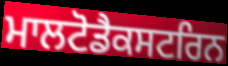
ਮਾਲਟੋਡੈਕਸਟਰਿਨ